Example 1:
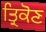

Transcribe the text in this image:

ਤ੍ਰਿਕੋਣ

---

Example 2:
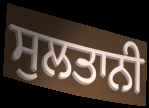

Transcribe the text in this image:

ਸੁਲਤਾਨੀ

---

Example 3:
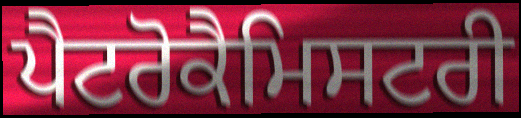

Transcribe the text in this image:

ਪੈਟਰੋਕੈਮਿਸਟਰੀ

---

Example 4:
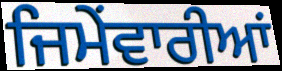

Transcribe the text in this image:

ਜਿਮੇਂਵਾਰੀਆਂ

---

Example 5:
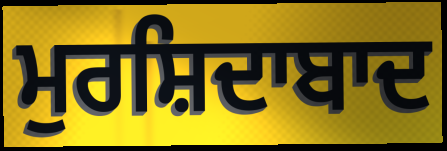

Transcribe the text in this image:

ਮੁਰਸ਼ਿਦਾਬਾਦ